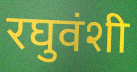
रघुवंशी